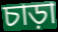
চাড়া